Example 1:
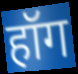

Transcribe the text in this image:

हॉग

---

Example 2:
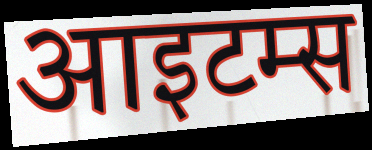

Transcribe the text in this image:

आइटम्स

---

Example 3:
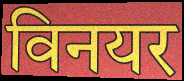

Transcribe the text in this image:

विनयर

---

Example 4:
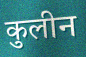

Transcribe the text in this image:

कुलीन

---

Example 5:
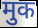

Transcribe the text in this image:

मुक